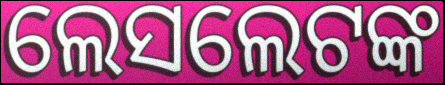
ଲେସଲେଟଙ୍କ